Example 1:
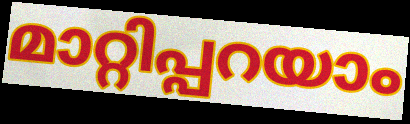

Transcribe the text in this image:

മാറ്റിപ്പറയാം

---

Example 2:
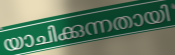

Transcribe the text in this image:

യാചിക്കുന്നതായി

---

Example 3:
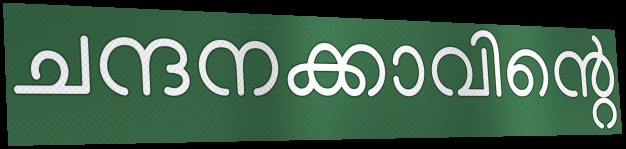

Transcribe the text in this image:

ചന്ദനക്കാവിന്റെ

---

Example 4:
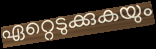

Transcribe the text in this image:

ഏറ്റെടുക്കുകയും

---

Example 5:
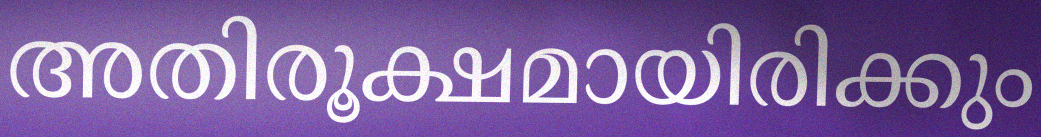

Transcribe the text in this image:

അതിരൂക്ഷമായിരിക്കും